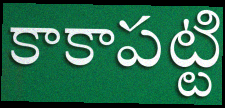
కాకాపట్టి